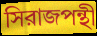
সিরাজপন্থী